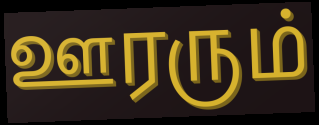
ஊரரும்